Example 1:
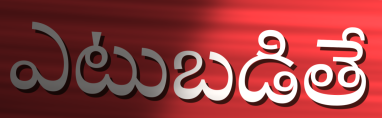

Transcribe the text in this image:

ఎటుబడితే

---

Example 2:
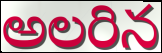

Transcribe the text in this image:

అలరిన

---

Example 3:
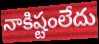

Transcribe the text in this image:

నాకిష్టంలేదు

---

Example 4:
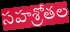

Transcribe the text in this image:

సహశ్రోతల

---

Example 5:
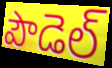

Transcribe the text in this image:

పౌడెల్